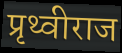
प्रृथ्वीराज